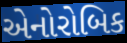
એનોરોબિક